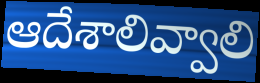
ఆదేశాలివ్వాలి